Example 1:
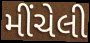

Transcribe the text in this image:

મીંચેલી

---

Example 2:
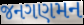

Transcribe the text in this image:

જનગણમન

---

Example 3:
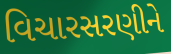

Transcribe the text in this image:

વિચારસરણીને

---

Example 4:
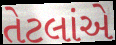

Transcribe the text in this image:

તેટલાંએ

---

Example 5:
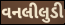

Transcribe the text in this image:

વનલીલુડી